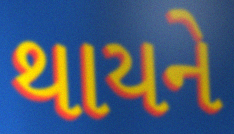
થાયને